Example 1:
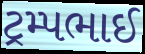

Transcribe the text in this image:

ટ્રમ્પભાઈ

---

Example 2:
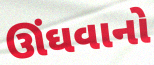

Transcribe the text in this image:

ઊંઘવાનો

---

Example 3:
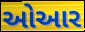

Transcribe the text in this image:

ઓઆર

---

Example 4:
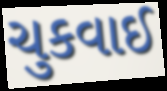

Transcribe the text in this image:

ચુકવાઈ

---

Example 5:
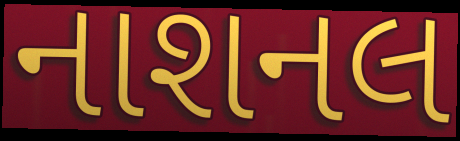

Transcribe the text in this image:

નાશનલ